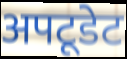
अपटूडेट